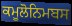
ਕਮੂਲੋਨਿਮਬਸ